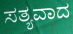
ಸತ್ಯವಾದ